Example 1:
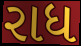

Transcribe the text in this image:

રાધ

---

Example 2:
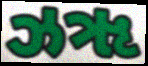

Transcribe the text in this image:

ઝૠ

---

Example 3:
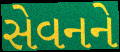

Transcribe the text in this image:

સેવનને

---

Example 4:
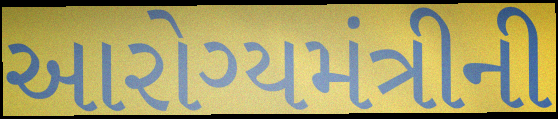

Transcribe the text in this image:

આરોગ્યમંત્રીની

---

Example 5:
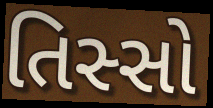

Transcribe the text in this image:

તિસ્સો